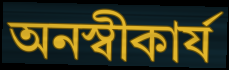
অনস্বীকার্য